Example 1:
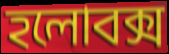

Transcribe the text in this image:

হলোবক্স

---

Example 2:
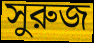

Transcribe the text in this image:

সুরুজ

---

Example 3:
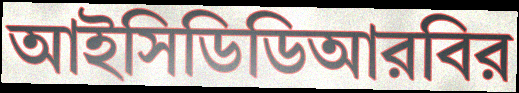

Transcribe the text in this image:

আইসিডিডিআরবির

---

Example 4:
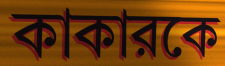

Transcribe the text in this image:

কাকারকে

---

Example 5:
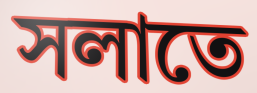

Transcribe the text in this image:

সলাতে